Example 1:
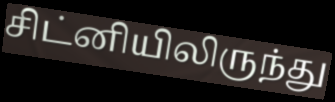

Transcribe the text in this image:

சிட்னியிலிருந்து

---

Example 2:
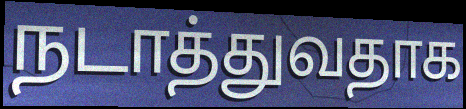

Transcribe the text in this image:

நடாத்துவதாக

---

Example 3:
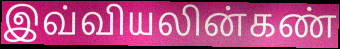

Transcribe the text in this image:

இவ்வியலின்கண்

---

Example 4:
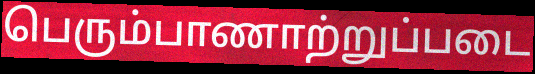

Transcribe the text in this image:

பெரும்பாணாற்றுப்படை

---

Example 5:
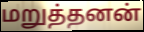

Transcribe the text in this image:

மறுத்தனன்